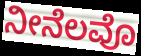
ನೀನೆಲವೊ